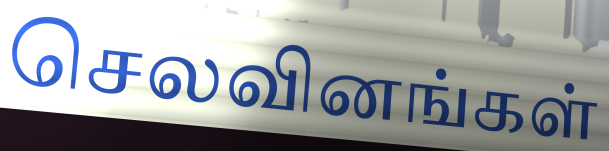
செலவினங்கள்